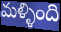
మళ్ళింది